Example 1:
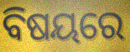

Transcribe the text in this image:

ବିଷୟରେ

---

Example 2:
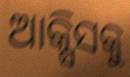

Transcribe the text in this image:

ଆକ୍ସିସକୁ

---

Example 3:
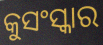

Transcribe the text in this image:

କୁସଂସ୍କାର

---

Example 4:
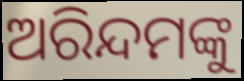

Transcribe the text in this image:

ଅରିନ୍ଦମଙ୍କୁ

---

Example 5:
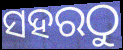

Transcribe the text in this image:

ସହରଠୁ